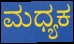
ಮಧ್ಯಕ